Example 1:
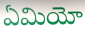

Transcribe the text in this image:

ఏమియో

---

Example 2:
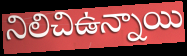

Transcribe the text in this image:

నిలిచిఉన్నాయి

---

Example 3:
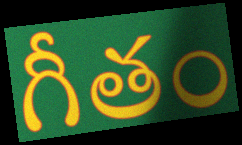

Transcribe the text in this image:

గీతం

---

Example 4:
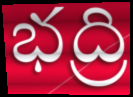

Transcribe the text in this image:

భద్రి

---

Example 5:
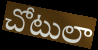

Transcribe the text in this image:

చోటులా